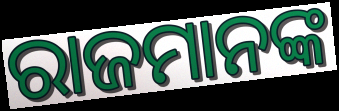
ରାଜମାନଙ୍କ